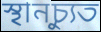
স্থানচ্যুত